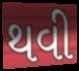
થવી